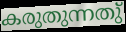
കരുതുന്നതു്